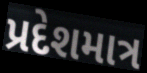
પ્રદેશમાત્ર